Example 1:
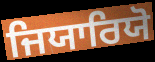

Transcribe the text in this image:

ਜਿਯਾਰਿਯੋ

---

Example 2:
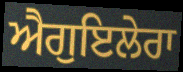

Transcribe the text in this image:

ਐਗੁਇਲੇਰਾ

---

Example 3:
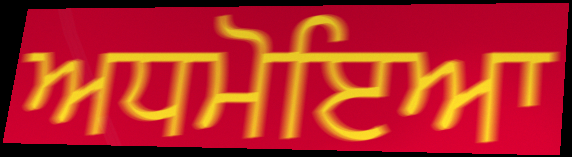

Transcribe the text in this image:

ਅਧਮੋਇਆ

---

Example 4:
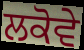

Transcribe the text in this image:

ਲਕੋਵੇ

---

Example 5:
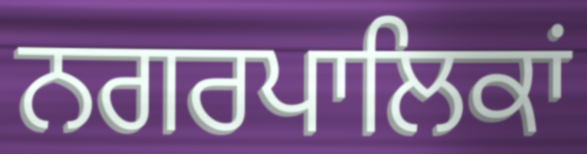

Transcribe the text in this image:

ਨਗਰਪਾਲਿਕਾਂ